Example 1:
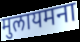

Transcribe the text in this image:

मुलायमना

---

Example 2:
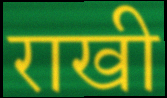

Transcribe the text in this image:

राखी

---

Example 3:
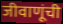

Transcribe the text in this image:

जीवाणूंची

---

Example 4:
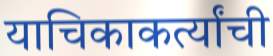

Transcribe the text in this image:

याचिकाकर्त्यांची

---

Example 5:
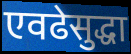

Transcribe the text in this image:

एवढेसुद्धा